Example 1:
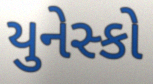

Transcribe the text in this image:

યુનેસ્કો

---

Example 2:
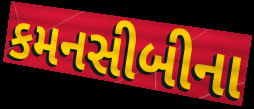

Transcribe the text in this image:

કમનસીબીના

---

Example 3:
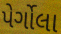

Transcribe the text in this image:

પેર્ગોલા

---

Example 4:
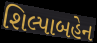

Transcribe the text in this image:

શિલ્પાબહેન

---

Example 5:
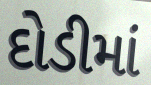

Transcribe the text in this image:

દોડીમાં